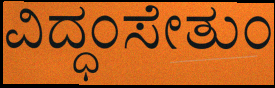
ವಿದ್ಧಂಸೇತುಂ